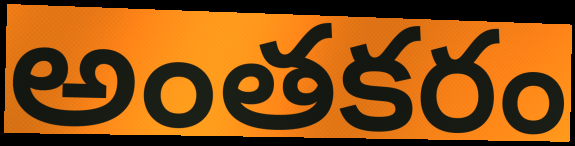
అంతకరం